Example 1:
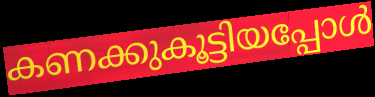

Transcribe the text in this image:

കണക്കുകൂട്ടിയപ്പോൾ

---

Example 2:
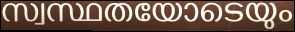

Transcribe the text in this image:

സ്വസ്ഥതയോടെയും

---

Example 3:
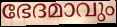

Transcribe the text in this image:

ഭേദമാവും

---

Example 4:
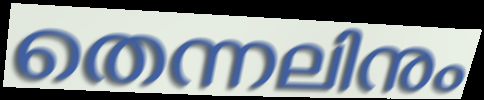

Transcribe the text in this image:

തെന്നലിനും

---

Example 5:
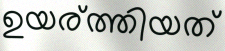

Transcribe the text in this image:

ഉയര്ത്തിയത്